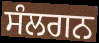
ਸੰਲਗਨ